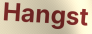
Hangst